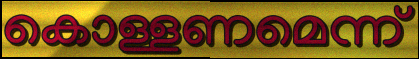
കൊള്ളണമെന്ന്